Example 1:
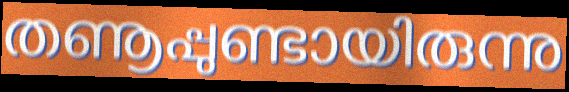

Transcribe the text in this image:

തണൂപ്പുണ്ടായിരുന്നു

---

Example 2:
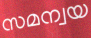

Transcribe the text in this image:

സമന്വയ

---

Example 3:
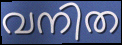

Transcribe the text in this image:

വനിത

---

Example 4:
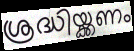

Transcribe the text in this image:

ശ്രദ്ധിയ്ക്കണം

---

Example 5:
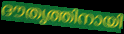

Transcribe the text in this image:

ദൗത്യത്തിനായി